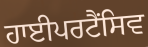
ਹਾਈਪਰਟੈਂਸਿਵ